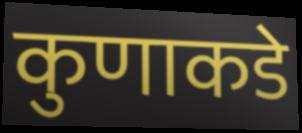
कुणाकडे